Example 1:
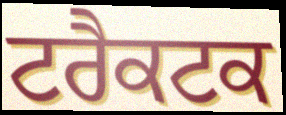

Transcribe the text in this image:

ਟਰੈਕਟਕ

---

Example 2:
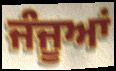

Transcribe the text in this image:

ਜੰਜੂਆਂ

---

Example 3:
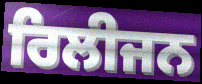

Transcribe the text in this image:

ਰਿਲੀਜਨ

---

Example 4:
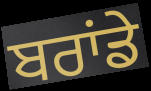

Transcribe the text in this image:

ਬਰਾਂਡੇ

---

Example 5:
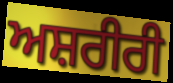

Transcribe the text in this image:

ਅਸ਼ਰੀਰੀ